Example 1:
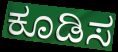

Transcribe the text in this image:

ಕೂಡಿಸ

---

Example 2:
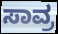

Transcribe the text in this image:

ಸಾವ್ರ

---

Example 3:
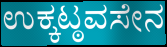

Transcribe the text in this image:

ಉಕ್ಕಟ್ಠವಸೇನ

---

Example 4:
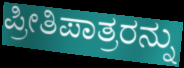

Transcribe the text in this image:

ಪ್ರೀತಿಪಾತ್ರರನ್ನು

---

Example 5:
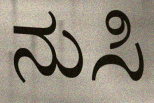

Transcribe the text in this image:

ನುಸಿ